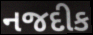
નજદીક